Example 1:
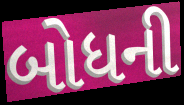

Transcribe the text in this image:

બોધની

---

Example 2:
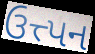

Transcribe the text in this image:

ઉત્ત્પન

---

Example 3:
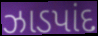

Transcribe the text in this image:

ઝાડપાંદ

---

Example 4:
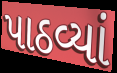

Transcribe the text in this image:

પાઠવ્યાં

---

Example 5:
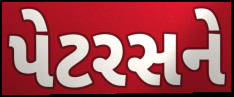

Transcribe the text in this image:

પેટરસને